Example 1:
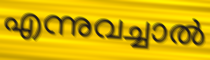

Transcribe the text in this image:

എന്നുവച്ചാൽ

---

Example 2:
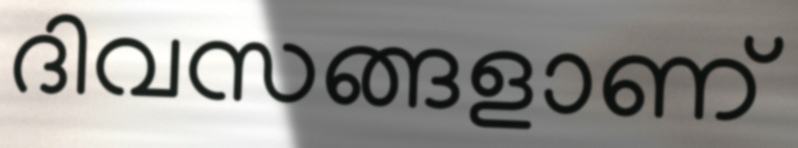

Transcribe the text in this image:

ദിവസങ്ങളാണ്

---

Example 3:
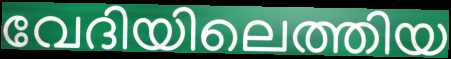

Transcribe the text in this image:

വേദിയിലെത്തിയ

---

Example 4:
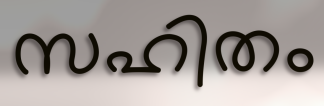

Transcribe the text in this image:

സഹിതം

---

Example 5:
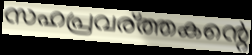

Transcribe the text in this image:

സഹപ്രവര്ത്തകന്റെ